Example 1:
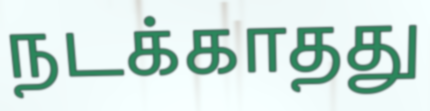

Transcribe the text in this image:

நடக்காதது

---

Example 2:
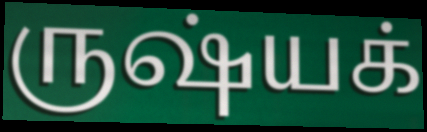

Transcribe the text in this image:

ருஷ்யக்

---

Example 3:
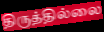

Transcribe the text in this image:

திருத்தில்லை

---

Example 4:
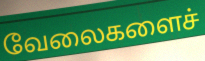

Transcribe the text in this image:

வேலைகளைச்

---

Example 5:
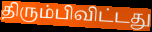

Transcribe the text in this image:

திரும்பிவிட்டது